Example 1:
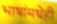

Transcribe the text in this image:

भाषांमधेही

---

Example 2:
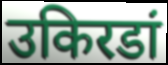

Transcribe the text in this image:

उकिरडां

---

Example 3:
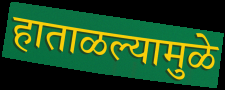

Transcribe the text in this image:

हाताळल्यामुळे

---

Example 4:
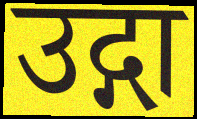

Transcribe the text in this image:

उद्गा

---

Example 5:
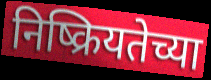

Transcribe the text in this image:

निष्क्रियतेच्या